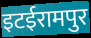
इटईरामपुर